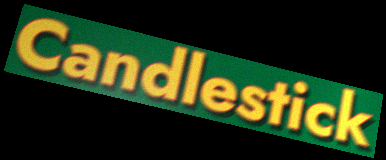
Candlestick